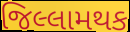
જિલ્લામથક